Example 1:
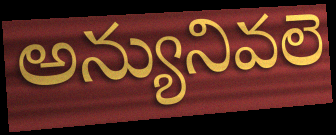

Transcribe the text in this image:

అన్యునివలె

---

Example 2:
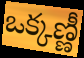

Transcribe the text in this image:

ఒక్కణ్ణీ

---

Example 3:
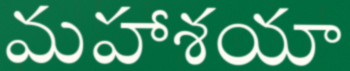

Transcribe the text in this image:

మహాశయా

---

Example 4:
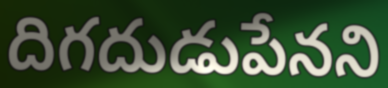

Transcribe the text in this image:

దిగదుడుపేనని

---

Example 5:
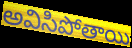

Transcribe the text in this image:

అవిసిపోతాయి